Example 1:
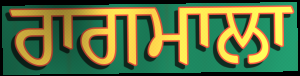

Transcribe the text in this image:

ਰਾਗਮਾਲਾ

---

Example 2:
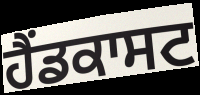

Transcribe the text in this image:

ਹੈਂਡਕਾਸਟ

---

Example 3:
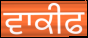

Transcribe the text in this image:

ਵਾਕੀਫ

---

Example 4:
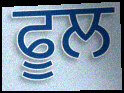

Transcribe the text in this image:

ਫੂਲ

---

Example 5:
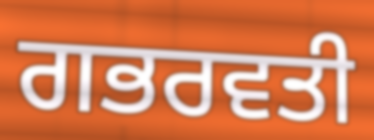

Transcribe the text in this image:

ਗਭਰਵਤੀ